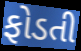
ફોડતી